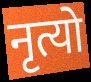
नृत्यो